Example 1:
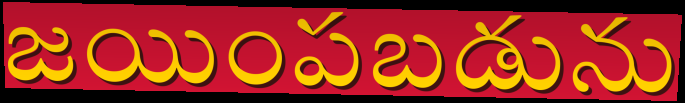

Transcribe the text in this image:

జయింపబడును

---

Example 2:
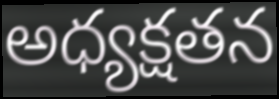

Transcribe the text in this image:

అధ్యక్షతన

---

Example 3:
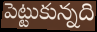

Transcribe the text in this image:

పెట్టుకున్నది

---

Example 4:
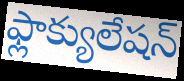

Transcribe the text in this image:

ఫ్లాక్యులేషన్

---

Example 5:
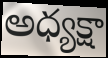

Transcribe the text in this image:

అధ్యక్షా